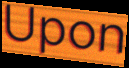
Upon